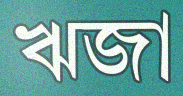
ঋজা